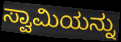
ಸ್ವಾಮಿಯನ್ನು